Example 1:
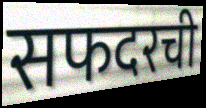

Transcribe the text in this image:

सफदरची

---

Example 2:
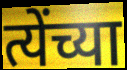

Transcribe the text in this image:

त्येंच्या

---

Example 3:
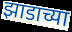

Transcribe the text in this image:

झाडाच्या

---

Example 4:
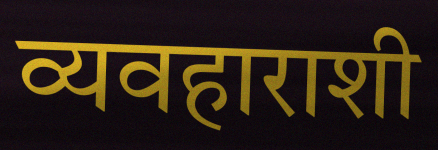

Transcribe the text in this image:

व्यवहाराशी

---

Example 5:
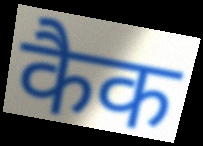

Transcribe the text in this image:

कैक